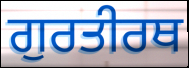
ਗੁਰਤੀਰਥ